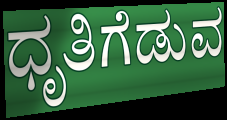
ಧೃತಿಗೆಡುವ